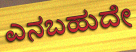
ಎನಬಹುದೇ